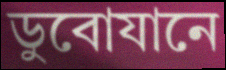
ডুবোযানে